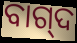
ବାଗ୍‌ଦ